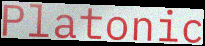
Platonic